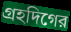
গ্রহদিগের